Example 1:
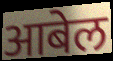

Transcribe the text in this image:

आबेल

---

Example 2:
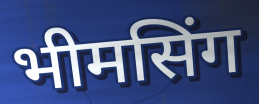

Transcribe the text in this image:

भीमसिंग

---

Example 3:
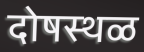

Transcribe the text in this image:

दोषस्थळ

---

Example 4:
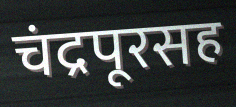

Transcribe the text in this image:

चंद्रपूरसह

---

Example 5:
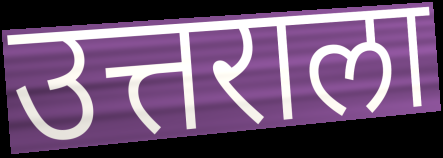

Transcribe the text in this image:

उत्तराला